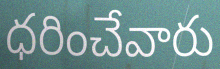
ధరించేవారు